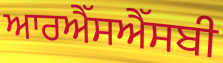
ਆਰਐੱਸਐੱਸਬੀ